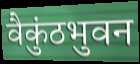
वैकुंठभुवन